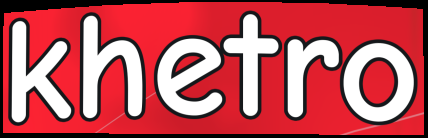
khetro